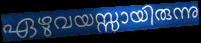
ഏഴുവയസ്സായിരുന്നു